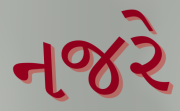
નજરે